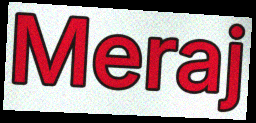
Meraj